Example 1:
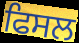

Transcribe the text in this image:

ਫਿਸਲ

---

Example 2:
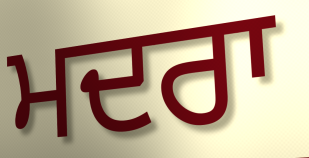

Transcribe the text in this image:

ਮਦਰਾ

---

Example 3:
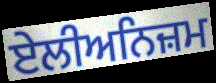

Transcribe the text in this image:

ਏਲੀਅਨਿਜ਼ਮ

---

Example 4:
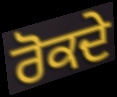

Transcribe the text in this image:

ਰੋਕਦੇ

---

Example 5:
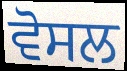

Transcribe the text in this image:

ਵੋਸਲ